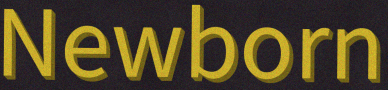
Newborn